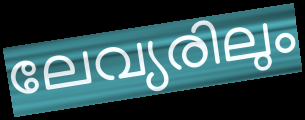
ലേവ്യരിലും